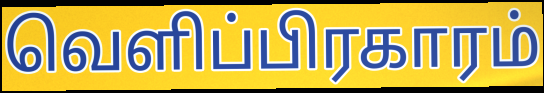
வெளிப்பிரகாரம்